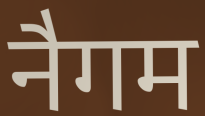
नैगम